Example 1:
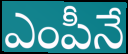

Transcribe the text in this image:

ఎంపీనే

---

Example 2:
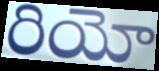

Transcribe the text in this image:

రియో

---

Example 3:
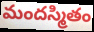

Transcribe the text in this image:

మందస్మితం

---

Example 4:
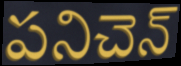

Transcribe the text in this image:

పనిచెన్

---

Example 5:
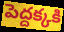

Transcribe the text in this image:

పెద్దక్కకి